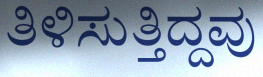
ತಿಳಿಸುತ್ತಿದ್ದವು